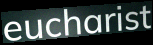
eucharist